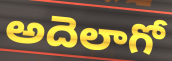
అదెలాగో